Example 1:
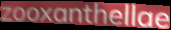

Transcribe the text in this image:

zooxanthellae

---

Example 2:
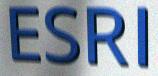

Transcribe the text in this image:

ESRI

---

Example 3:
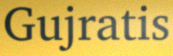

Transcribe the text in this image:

Gujratis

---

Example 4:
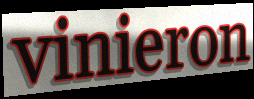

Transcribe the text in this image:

vinieron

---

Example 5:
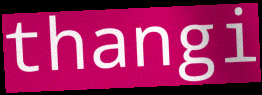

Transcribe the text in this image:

thangi